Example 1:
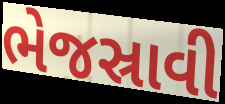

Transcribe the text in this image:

ભેજસ્રાવી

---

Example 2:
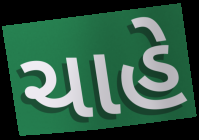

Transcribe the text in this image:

ચાહે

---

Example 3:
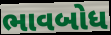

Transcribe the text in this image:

ભાવબોધ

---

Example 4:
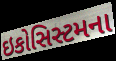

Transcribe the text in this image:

ઇકોસિસ્ટમના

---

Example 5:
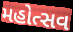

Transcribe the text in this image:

મહોત્સવ